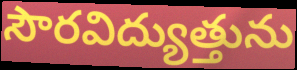
సౌరవిద్యుత్తును